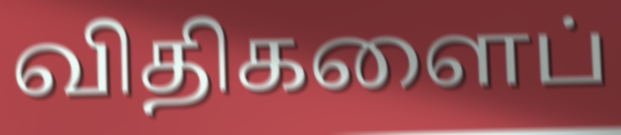
விதிகளைப்